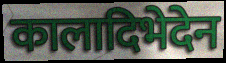
कालादिभेदेन